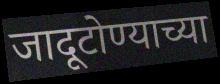
जादूटोण्याच्या